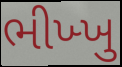
ભીખ્ખુ